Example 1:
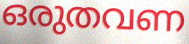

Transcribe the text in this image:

ഒരുതവണ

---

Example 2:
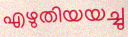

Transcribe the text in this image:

എഴുതിയയച്ചു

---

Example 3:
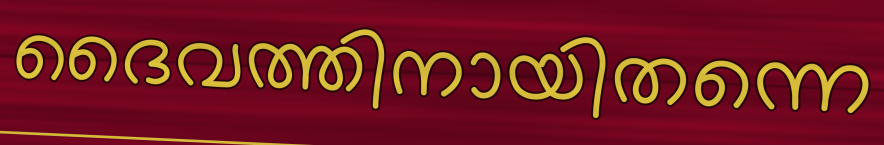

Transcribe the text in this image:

ദൈവത്തിനായിതന്നെ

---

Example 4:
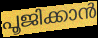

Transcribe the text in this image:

പൂജിക്കാൻ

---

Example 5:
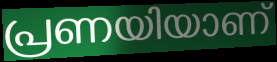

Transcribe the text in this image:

പ്രണയിയാണ്